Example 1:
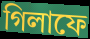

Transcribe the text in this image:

গিলাফে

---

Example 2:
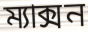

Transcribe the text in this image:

ম্যাক্সন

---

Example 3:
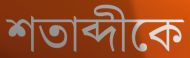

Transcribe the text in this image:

শতাব্দীকে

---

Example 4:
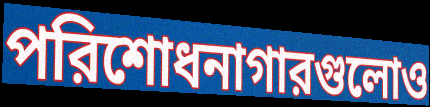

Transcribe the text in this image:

পরিশোধনাগারগুলোও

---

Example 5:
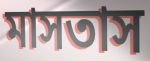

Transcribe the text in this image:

মাসতাস